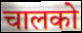
चालको